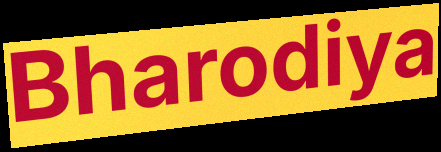
Bharodiya